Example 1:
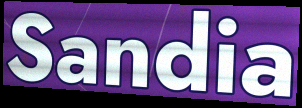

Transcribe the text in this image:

Sandia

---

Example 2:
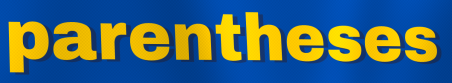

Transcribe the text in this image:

parentheses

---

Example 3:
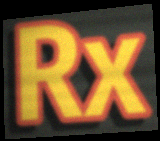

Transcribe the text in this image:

Rx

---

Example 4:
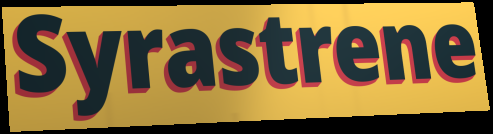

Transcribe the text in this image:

Syrastrene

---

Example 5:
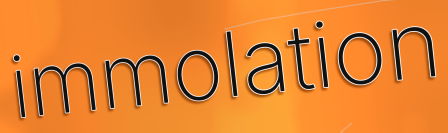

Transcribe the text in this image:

immolation